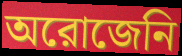
অরোজেনি